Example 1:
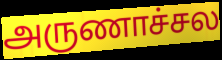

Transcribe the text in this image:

அருணாச்சல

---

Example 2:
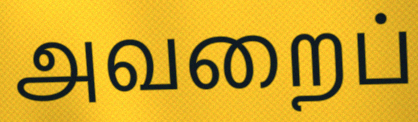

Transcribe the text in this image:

அவறைப்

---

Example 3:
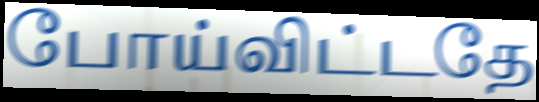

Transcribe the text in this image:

போய்விட்டதே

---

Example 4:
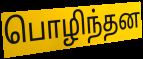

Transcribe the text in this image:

பொழிந்தன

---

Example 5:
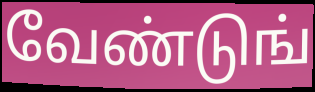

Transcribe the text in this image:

வேண்டுங்